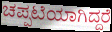
ಚಪ್ಪಟೆಯಾಗಿದ್ದರೆ